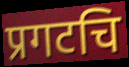
प्रगटचि